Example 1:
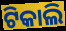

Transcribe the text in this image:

ଟିକାଲି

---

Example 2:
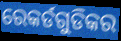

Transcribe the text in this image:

ରେକର୍ଡଗୁଡିକର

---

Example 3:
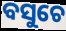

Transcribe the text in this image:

ବସୁଚେ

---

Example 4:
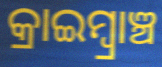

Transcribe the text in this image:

କ୍ରାଇମ୍ବ୍ରାଞ୍ଚ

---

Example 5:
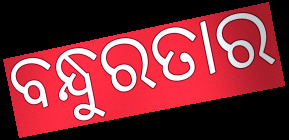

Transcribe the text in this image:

ବନ୍ଧୁରତାର